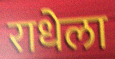
राधेला